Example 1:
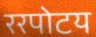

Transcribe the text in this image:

ररपोटय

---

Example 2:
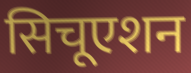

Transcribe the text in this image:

सिचूएशन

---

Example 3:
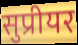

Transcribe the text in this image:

सुप्रीयर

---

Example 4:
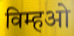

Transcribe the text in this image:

विम्हओ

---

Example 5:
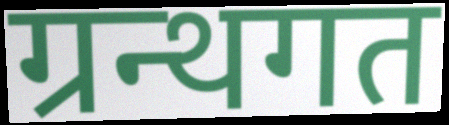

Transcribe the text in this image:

ग्रन्थगत